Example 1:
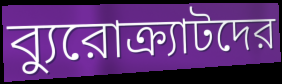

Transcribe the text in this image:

ব্যুরোক্র্যাটদের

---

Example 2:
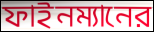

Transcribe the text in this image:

ফাইনম্যানের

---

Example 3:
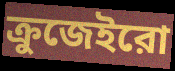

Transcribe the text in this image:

ক্রুজেইরো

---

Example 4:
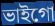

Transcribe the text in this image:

ভাইগো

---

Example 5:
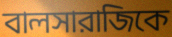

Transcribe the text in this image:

বালসারাজিকে